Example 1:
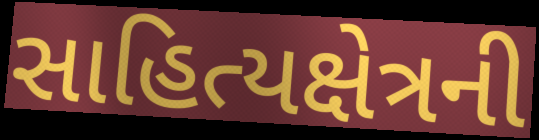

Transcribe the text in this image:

સાહિત્યક્ષેત્રની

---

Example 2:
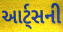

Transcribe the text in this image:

આર્ટ્સની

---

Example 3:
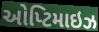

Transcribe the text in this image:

ઓપ્ટિમાઇઝ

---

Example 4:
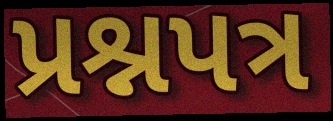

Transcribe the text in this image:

પ્રશ્નપત્ર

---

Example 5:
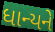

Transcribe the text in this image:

ધાન્યને